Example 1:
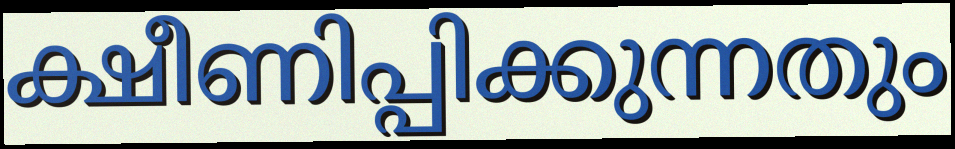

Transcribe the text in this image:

ക്ഷീണിപ്പിക്കുന്നതും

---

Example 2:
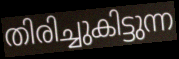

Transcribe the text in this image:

തിരിച്ചുകിട്ടുന്ന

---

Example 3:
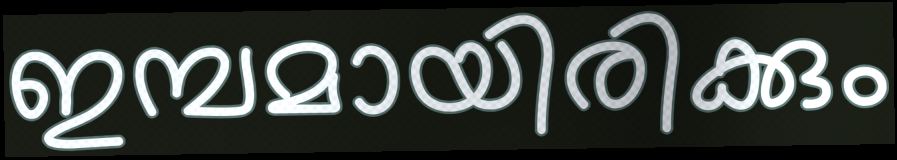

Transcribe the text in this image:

ഇമ്പമായിരിക്കും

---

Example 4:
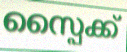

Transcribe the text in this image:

സ്പൈക്ക്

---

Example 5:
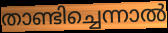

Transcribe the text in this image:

താണ്ടിച്ചെന്നാൽ